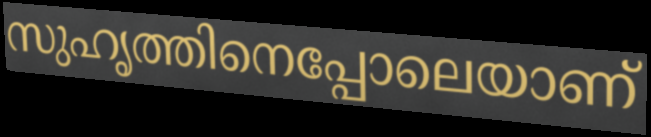
സുഹൃത്തിനെപ്പോലെയാണ്